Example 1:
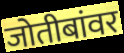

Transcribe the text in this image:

जोतीबांवर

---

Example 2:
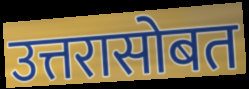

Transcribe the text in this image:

उत्तरासोबत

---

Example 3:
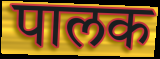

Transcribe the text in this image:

पालक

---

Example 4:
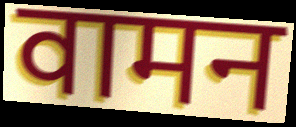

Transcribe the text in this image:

वामन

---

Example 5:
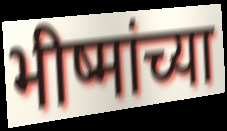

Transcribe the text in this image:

भीष्मांच्या